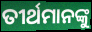
ତୀର୍ଥମାନଙ୍କୁ